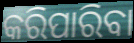
କରିପାରିବା